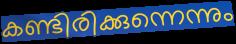
കണ്ടിരിക്കുന്നെന്നും